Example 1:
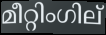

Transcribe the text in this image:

മീറ്റിംഗില്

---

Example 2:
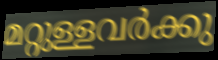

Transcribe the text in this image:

മറ്റുള്ളവർക്കു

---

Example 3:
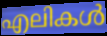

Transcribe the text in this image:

എലികൾ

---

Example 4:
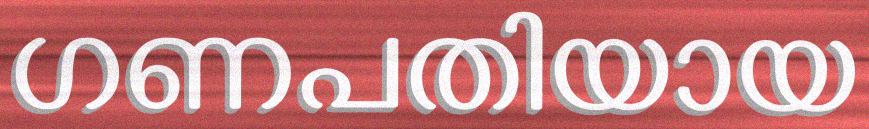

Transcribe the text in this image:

ഗണപതിയായ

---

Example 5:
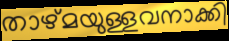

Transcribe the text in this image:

താഴ്മയുള്ളവനാക്കി